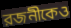
রজনীকেও